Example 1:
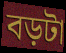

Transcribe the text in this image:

বড়টা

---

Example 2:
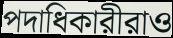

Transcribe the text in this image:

পদাধিকারীরাও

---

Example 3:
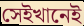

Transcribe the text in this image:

সেইখানেই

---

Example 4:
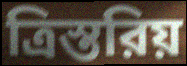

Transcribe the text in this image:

ত্রিস্তরিয়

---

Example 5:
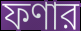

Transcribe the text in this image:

ফণার